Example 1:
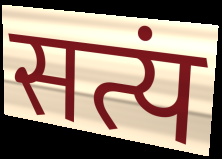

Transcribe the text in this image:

सत्यं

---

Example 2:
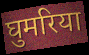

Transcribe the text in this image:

घुमरिया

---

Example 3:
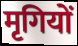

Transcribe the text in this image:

मृगियों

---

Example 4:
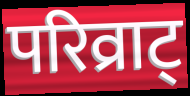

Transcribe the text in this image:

परिव्राट्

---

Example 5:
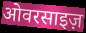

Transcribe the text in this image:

ओवरसाइज़